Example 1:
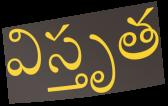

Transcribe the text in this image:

విస్తృత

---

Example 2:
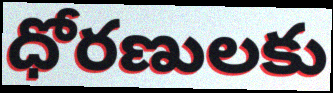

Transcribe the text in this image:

ధోరణులకు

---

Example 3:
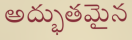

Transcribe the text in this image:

అద్భుతమైన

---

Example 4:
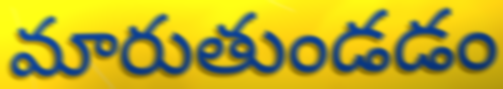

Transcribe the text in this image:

మారుతుండడం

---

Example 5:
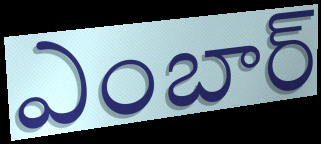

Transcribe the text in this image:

ఎంబార్